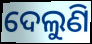
ଦେଲୁଣି